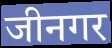
जीनगर